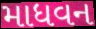
માધવન